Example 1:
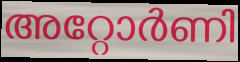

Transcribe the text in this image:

അറ്റോർണി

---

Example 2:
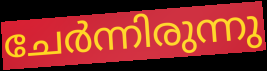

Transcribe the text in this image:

ചേർന്നിരുന്നു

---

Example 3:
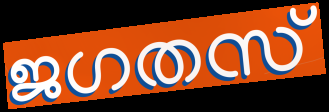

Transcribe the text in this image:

ജഗതസ്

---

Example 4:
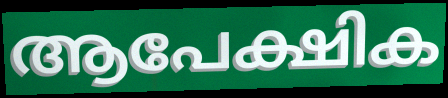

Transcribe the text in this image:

ആപേക്ഷിക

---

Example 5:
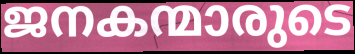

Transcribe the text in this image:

ജനകന്മാരുടെ